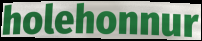
holehonnur